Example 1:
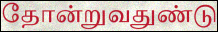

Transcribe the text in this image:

தோன்றுவதுண்டு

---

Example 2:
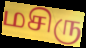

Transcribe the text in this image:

மசிரு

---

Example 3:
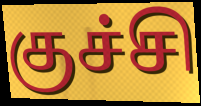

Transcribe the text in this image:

குச்சி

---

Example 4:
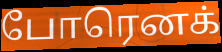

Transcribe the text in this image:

போரெனக்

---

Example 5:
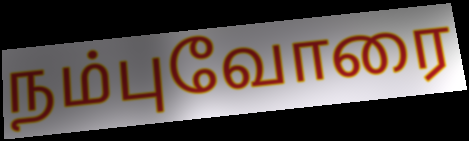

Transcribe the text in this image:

நம்புவோரை